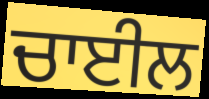
ਚਾਈਲ